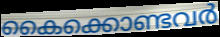
കൈക്കൊണ്ടവർ